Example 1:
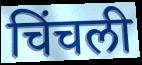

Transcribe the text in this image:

चिंचली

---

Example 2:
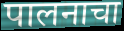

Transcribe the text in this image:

पालनाचा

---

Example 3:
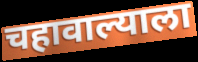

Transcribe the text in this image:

चहावाल्याला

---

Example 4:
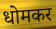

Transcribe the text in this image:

धोमकर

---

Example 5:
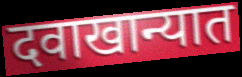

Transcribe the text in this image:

दवाखान्यात